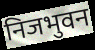
निजभुवन